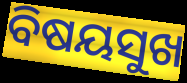
ବିଷୟସୁଖ